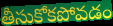
తీసుకోకపోవడం